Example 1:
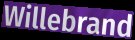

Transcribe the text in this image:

Willebrand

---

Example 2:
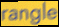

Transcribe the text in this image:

rangle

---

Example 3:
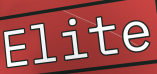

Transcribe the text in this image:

Elite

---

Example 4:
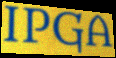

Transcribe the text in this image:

IPGA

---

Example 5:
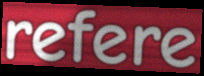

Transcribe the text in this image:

refere